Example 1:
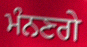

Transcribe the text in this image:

ਮੰਨਣਗੇ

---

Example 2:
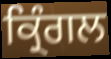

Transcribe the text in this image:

ਕ੍ਰਿੰਗਲ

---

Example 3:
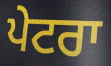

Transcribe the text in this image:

ਪੇਟਰਾ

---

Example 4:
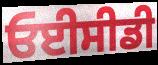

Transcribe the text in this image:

ਓਈਸੀਡੀ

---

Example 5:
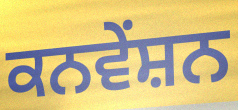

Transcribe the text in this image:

ਕਨਵੇਂਸ਼ਨ